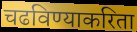
चढविण्याकरिता